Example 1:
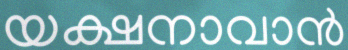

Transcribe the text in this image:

യക്ഷനാവാൻ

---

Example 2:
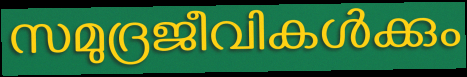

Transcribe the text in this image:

സമുദ്രജീവികൾക്കും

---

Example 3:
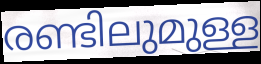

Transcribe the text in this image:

രണ്ടിലുമുള്ള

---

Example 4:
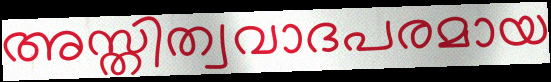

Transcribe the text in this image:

അസ്തിത്വവാദപരമായ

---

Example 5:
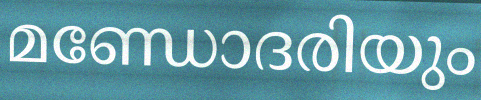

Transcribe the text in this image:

മണ്ഡോദരിയും